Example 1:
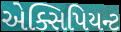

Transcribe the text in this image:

એક્સિપિયન્ટ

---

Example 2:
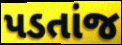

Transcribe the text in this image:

પડતાંજ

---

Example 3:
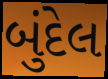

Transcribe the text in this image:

બુંદેલ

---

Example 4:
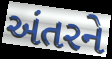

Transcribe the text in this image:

અંતરને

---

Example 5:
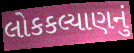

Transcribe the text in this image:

લોકકલ્યાણનું